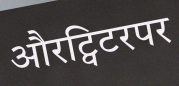
औरट्विटरपर